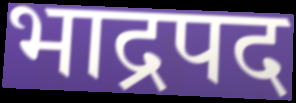
भाद्रपद